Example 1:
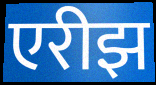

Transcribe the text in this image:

एरीझ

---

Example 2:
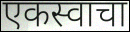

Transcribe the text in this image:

एकस्वाचा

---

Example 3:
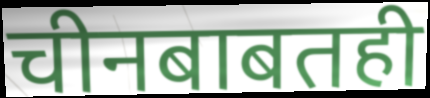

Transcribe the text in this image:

चीनबाबतही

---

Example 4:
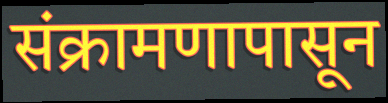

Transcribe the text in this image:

संक्रामणापासून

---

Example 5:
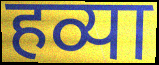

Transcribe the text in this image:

हव्या